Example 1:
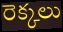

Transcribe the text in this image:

రెక్కలు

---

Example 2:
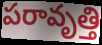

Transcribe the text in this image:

పరావృత్తి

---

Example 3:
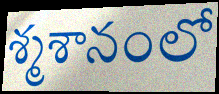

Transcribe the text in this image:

శ్మశానంలో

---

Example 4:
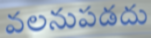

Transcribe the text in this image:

వలనుపడదు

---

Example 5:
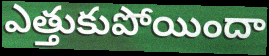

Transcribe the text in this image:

ఎత్తుకుపోయిందా